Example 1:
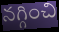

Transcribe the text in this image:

నగ్గించి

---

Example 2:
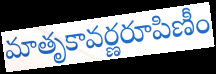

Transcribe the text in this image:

మాతృకావర్ణరూపిణీం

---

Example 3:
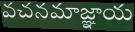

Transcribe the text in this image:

వచనమాజ్ఞాయ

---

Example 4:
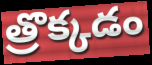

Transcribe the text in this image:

త్రొక్కడం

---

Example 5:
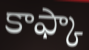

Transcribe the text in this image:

కాఫ్కా